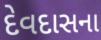
દેવદાસના